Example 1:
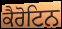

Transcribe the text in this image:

ਕੈਰੋਟਿਨ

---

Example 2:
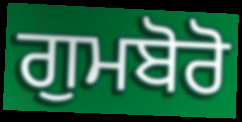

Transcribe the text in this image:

ਗੁਮਬੋਰੋ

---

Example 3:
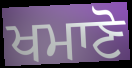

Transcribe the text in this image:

ਖਮਾਣੋ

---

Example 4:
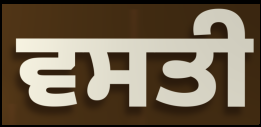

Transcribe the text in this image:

ਵਸਤੀ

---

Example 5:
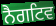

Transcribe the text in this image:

ਨੈਗਟਿਵ